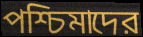
পশ্চিমাদের